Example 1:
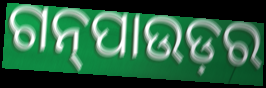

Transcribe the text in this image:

ଗନ୍‍ପାଉଡ଼ର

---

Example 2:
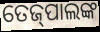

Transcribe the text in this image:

ତେଜ୍‌ପାଲଙ୍କ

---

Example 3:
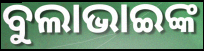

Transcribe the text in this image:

ବୁଲାଭାଇଙ୍କ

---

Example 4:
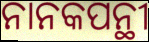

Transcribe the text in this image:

ନାନକପନ୍ଥୀ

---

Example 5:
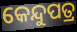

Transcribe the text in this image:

କେନ୍ଦୁପତ୍ର